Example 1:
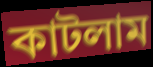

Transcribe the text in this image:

কাটলাম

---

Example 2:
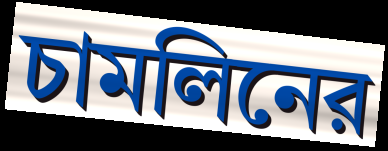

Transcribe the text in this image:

চামলিনের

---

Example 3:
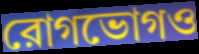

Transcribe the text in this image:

রোগভোগও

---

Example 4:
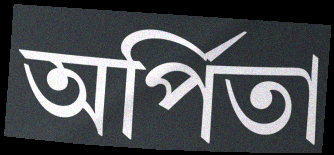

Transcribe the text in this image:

অর্পিতা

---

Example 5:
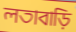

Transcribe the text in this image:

লতাবাড়ি